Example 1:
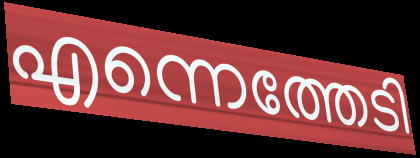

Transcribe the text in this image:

എന്നെത്തേടി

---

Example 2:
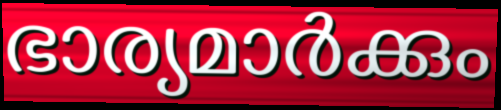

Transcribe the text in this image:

ഭാര്യമാർക്കും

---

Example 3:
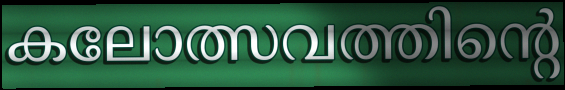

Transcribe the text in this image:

കലോത്സവത്തിന്റെ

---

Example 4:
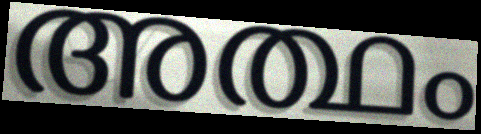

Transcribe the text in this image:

അത്ഥം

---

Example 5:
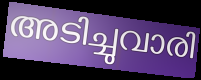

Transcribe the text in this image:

അടിച്ചുവാരി